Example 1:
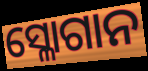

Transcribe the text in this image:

ସ୍ଳୋଗାନ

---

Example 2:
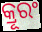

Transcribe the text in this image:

କ୍ରୂରଂ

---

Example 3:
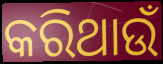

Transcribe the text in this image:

କରିଥାଉଁ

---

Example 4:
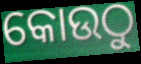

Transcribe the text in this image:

କୋଉଠୁ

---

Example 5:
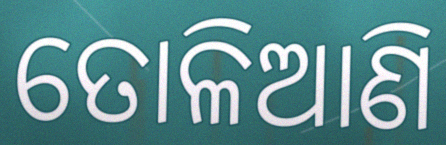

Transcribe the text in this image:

ତୋଳିଆଣି